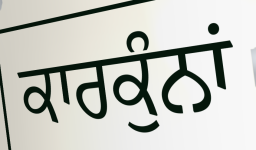
ਕਾਰਕੁੰਨਾਂ